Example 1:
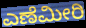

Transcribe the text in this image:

ಎಣೆಮೀರಿ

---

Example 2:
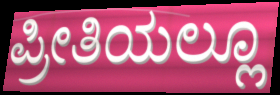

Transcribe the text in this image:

ಪ್ರೀತಿಯಲ್ಲೂ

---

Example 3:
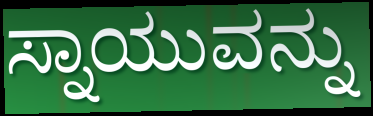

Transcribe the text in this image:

ಸ್ನಾಯುವನ್ನು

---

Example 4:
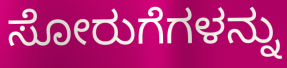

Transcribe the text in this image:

ಸೋರುಗೆಗಳನ್ನು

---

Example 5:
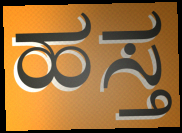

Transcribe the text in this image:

ಹಸ್ತ